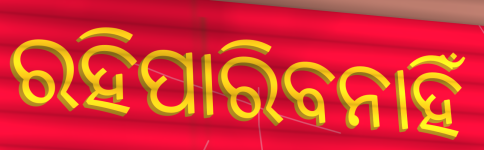
ରହିପାରିବନାହିଁ